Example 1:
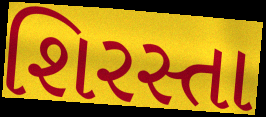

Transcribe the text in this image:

શિરસ્તા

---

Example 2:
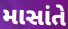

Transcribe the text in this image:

માસાંતે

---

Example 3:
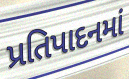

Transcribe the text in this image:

પ્રતિપાદનમાં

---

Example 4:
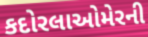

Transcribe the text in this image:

કદોરલાઓમેરની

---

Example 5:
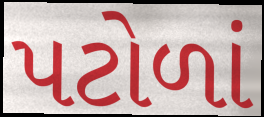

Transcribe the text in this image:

પટોળાં